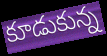
కూడుకున్న